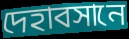
দেহাবসানে